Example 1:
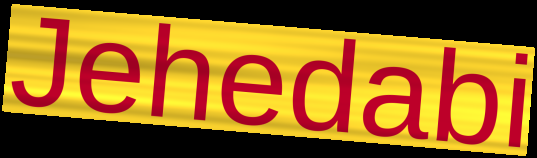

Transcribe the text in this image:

Jehedabi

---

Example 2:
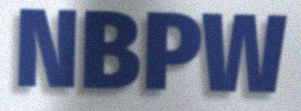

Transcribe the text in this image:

NBPW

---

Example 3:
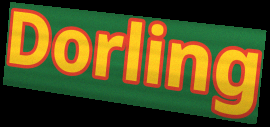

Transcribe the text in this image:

Dorling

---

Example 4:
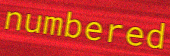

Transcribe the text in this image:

numbered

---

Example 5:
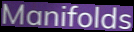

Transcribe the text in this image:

Manifolds